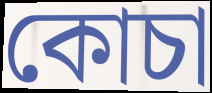
কোচা